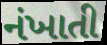
નંખાતી